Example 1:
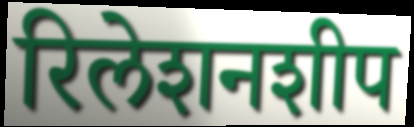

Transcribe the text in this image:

रिलेशनशीप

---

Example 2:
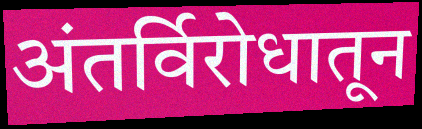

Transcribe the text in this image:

अंतर्विरोधातून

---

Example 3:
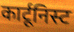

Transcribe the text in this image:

कार्टूनिस्ट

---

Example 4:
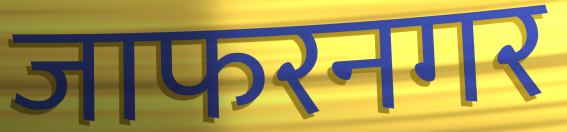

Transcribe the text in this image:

जाफरनगर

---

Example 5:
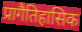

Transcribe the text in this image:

प्रागैतिहासिक